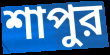
শাপুর